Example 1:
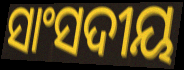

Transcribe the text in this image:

ସାଂସଦୀୟ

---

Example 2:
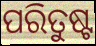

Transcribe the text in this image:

ପରିତୁଷ୍ଟ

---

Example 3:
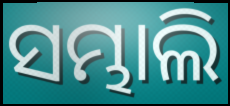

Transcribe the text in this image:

ସମ୍ଭାଲି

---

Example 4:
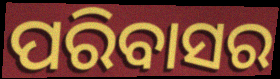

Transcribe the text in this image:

ପରିବାସର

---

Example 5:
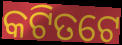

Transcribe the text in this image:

କଟିତଟେ